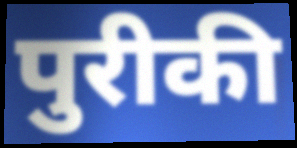
पुरीकी